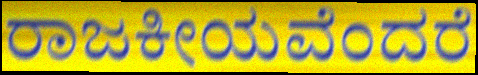
ರಾಜಕೀಯವೆಂದರೆ